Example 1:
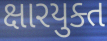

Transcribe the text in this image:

ક્ષારયુક્ત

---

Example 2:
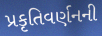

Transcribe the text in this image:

પ્રકૃતિવર્ણનની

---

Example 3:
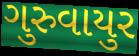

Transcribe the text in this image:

ગુરુવાયુર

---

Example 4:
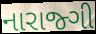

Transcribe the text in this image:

નારાજ્ગી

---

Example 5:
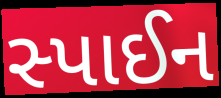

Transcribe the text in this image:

સ્પાઈન